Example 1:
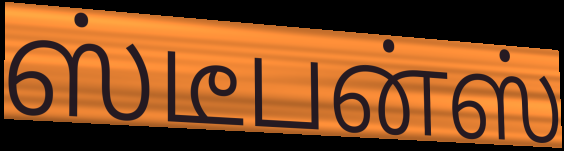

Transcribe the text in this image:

ஸ்டீபன்ஸ்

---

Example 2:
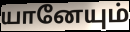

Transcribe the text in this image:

யானேயும்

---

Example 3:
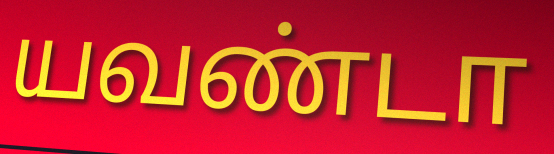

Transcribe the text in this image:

யவண்டா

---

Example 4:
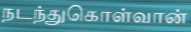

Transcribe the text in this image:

நடந்துகொள்வான்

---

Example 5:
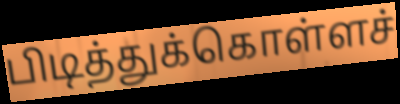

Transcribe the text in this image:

பிடித்துக்கொள்ளச்